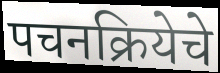
पचनक्रियेचे